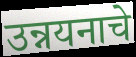
उन्नयनाचे